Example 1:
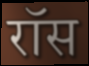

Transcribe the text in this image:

रॉस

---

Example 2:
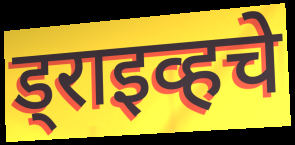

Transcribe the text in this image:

ड्राइव्हचे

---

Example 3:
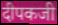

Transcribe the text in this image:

दीपकजी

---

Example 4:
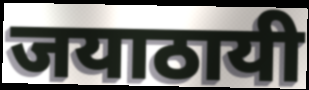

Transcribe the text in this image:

जयाठायी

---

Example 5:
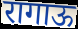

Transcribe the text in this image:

रागाऊ